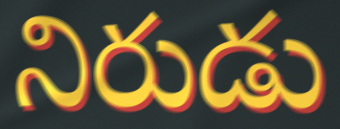
నిరుడు